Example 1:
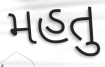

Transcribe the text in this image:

મહતુ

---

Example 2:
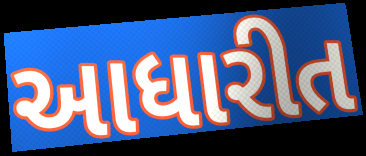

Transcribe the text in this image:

આધારીત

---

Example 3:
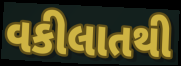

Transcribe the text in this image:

વકીલાતથી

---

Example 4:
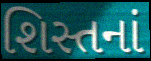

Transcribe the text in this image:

શિસ્તનાં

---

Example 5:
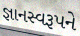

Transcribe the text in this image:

જ્ઞાનસ્વરૂપને